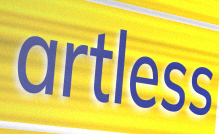
artless